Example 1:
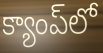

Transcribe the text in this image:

క్యాంప్‌లో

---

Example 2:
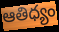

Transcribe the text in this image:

ఆతిధ్యం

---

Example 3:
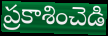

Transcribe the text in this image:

ప్రకాశించెడి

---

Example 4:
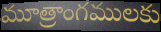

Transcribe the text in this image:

మూత్రాంగములకు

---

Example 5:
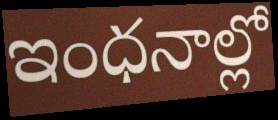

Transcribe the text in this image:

ఇంధనాల్లో